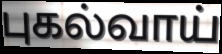
புகல்வாய்